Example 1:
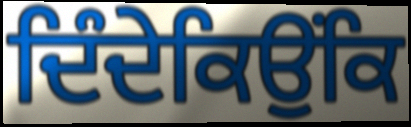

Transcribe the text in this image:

ਦਿੰਦੇਕਿਉਂਕਿ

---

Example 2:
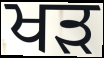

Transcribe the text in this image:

ਖੜ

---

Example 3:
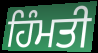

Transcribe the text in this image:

ਹਿੰਮਤੀ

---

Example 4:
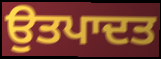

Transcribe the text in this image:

ਉਤਪਾਦਤ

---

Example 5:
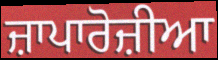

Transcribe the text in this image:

ਜ਼ਾਪਾਰੋਜ਼ੀਆ